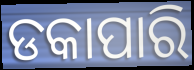
ଡକାପାରି